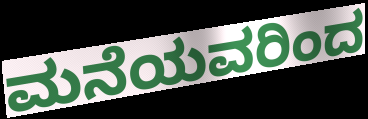
ಮನೆಯವರಿಂದ